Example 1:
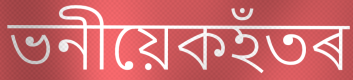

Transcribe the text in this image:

ভনীয়েকহঁতৰ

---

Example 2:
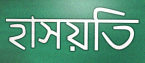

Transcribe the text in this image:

হাসয়তি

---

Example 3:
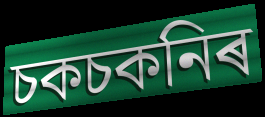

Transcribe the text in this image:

চকচকনিৰ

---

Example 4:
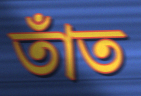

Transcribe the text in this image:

তাঁত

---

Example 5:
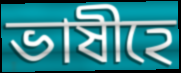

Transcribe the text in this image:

ভাষীহে